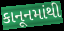
કાનૂનમાંથી